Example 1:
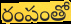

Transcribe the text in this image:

రంపంతో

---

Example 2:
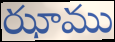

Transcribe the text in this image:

ఝాము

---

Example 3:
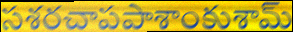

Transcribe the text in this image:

సశరచాపపాశాంకుశామ్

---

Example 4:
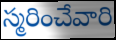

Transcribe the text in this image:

స్మరించేవారి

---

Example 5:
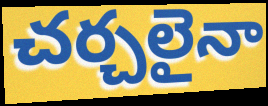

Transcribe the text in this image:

చర్చలైనా